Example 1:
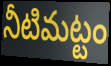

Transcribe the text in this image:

నీటిమట్టం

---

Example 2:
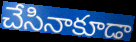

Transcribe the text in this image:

చేసినాకూడా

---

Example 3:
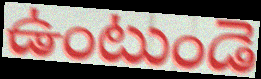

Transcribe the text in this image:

ఉంటుండె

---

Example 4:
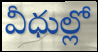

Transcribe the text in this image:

వీధుల్లో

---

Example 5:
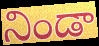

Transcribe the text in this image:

నిండా